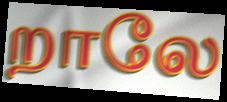
றாலே